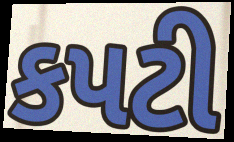
કપટી